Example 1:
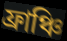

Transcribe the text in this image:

ফ্রাঞ্চি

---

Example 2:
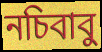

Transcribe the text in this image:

নচিবাবু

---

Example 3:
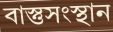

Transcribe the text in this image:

বাস্তুসংস্থান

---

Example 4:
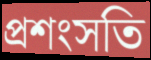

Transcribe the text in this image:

প্রশংসতি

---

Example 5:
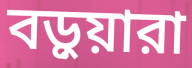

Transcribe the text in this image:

বড়ুয়ারা